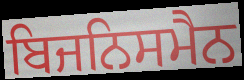
ਬਿਜਨਿਸਮੈਨ